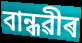
বান্ধৱীৰ